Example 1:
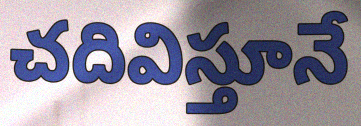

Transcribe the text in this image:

చదివిస్తూనే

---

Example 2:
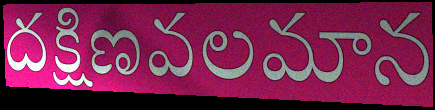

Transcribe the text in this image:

దక్షిణవలమాన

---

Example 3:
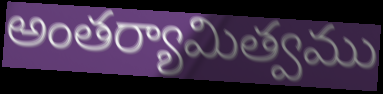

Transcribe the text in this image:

అంతర్యామిత్వము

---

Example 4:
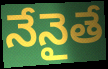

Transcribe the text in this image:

నేనైతే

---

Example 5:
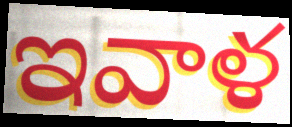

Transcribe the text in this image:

ఇవాళ